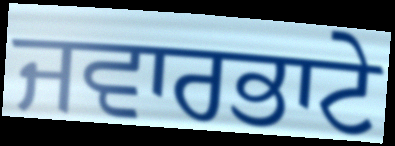
ਜਵਾਰਭਾਟੇ